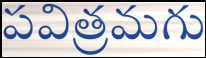
పవిత్రమగు